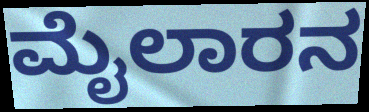
ಮೈಲಾರನ